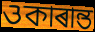
ওকাৰান্ত